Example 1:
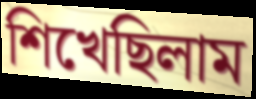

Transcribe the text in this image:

শিখেছিলাম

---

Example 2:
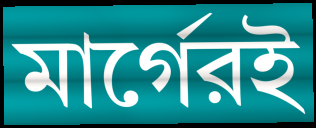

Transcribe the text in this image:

মার্গেরই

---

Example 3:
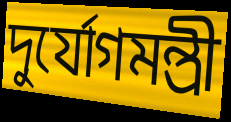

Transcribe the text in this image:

দুর্যোগমন্ত্রী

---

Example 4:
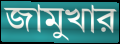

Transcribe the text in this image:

জামুখার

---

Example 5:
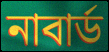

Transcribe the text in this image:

নাবার্ড